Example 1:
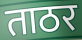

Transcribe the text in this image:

ताठर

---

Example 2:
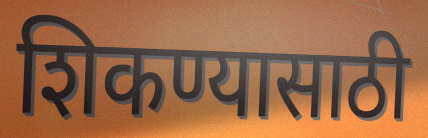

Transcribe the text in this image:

शिकण्यासाठी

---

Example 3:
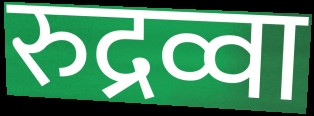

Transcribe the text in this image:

रुद्रव्वा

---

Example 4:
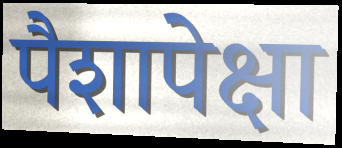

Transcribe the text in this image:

पैशापेक्षा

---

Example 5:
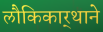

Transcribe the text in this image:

लौकिकार्थाने